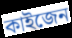
কাইজেন